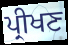
ਪ੍ਰੀਖਣ